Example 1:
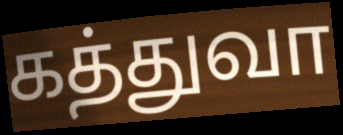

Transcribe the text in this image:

கத்துவா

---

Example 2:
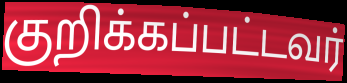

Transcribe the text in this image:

குறிக்கப்பட்டவர்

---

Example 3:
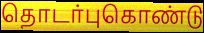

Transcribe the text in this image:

தொடர்புகொண்டு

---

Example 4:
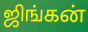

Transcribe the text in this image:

ஜிங்கன்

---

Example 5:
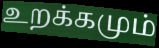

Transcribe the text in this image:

உறக்கமும்